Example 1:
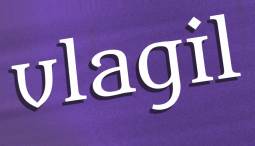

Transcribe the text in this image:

ulagil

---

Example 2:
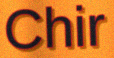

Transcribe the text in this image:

Chir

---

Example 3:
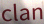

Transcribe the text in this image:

clan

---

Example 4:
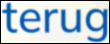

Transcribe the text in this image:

terug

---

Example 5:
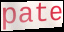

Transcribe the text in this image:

pate